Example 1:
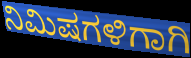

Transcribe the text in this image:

ನಿಮಿಷಗಳಿಗಾಗಿ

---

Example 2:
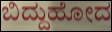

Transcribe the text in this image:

ಬಿದ್ದುಹೋದ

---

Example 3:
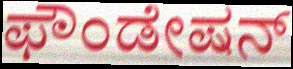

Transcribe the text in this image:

ಫೌಂಡೇಷನ್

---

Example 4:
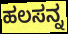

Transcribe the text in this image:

ಹಲಸನ್ನ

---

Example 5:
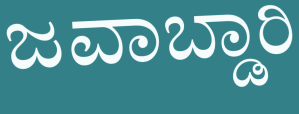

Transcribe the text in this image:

ಜವಾಬ್ಡಾರಿ